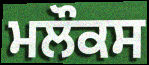
ਮਲੌਕਸ